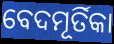
ବେଦମୂର୍ତିକା